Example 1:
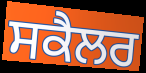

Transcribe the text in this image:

ਸਕੈਲਰ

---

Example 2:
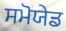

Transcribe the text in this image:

ਸਮੋਯੇਡ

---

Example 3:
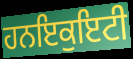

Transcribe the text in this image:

ਹਨਇਕੁਇਟੀ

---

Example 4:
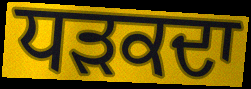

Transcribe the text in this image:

ਧੜਕਦਾ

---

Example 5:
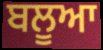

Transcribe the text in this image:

ਬਲੂਆ